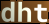
dht